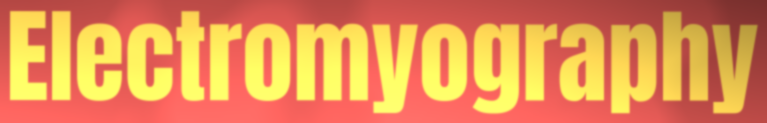
Electromyography